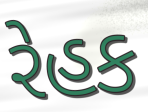
રેહક